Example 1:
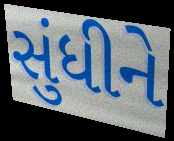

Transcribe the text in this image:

સુંધીને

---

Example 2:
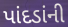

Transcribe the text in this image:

પાંદડાંની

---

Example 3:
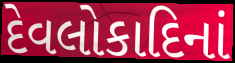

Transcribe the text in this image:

દેવલોકાદિનાં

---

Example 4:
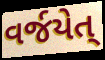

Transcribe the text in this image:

વર્જયેત્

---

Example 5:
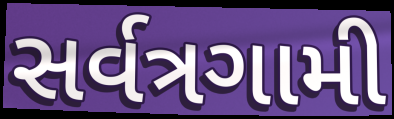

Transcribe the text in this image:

સર્વત્રગામી